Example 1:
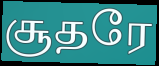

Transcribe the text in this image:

சூதரே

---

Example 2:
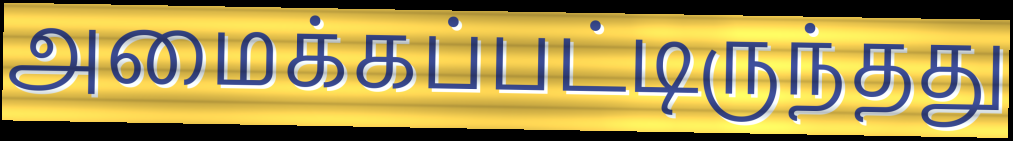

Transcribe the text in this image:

அமைக்கப்பட்டிருந்தது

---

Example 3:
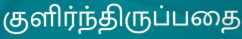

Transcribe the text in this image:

குளிர்ந்திருப்பதை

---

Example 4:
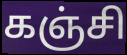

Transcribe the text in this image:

கஞ்சி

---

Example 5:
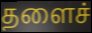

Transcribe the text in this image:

தளைச்